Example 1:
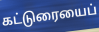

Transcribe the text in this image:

கட்டுரையைப்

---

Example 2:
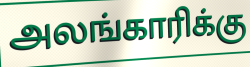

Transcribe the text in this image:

அலங்காரிக்கு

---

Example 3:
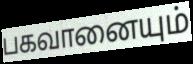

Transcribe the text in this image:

பகவானையும்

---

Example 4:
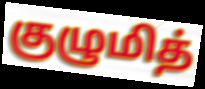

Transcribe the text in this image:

குழுமித்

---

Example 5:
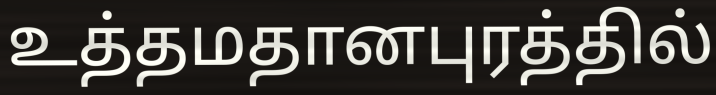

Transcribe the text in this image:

உத்தமதானபுரத்தில்